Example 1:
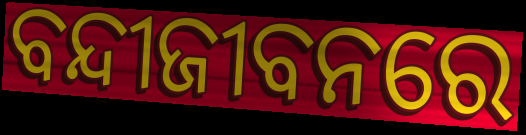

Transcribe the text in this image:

ବନ୍ଦୀଜୀବନରେ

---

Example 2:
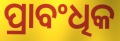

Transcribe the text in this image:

ପ୍ରାବଂଧିକ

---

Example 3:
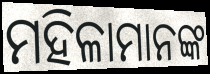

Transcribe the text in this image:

ମହିଳାମାନଙ୍କ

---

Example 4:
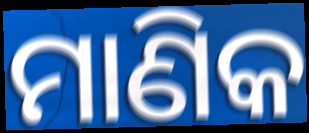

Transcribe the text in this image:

ମାଣିକ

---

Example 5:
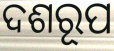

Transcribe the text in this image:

ଦଶରୂପ